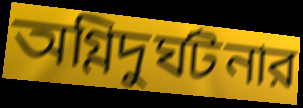
অগ্নিদুর্ঘটনার